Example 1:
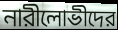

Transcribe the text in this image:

নারীলোভীদের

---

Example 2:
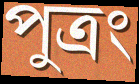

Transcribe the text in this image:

পুত্রং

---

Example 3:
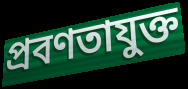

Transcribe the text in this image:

প্রবণতাযুক্ত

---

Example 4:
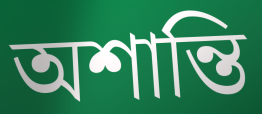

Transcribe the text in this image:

অশান্তি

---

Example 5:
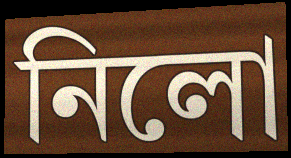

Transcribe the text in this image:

নিলো